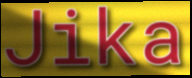
Jika